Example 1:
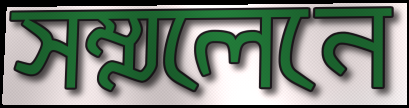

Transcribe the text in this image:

সম্মলেনে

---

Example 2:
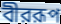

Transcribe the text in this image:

বীররূপ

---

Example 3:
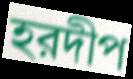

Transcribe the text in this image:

হরদীপ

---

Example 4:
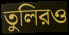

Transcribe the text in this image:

তুলিরও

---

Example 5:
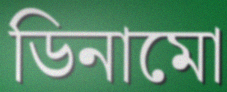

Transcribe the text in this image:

ডিনামো